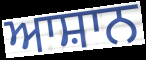
ਆਸ਼ਾਨ